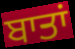
ਬਾਤਾਂ